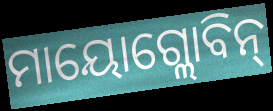
ମାୟୋଗ୍ଲୋବିନ୍